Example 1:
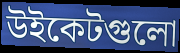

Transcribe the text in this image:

উইকেটগুলো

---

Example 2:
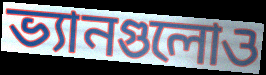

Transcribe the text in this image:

ভ্যানগুলোও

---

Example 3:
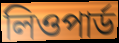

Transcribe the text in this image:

লিওপার্ড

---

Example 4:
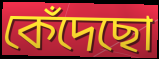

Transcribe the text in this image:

কেঁদেছো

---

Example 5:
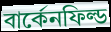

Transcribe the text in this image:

বার্কেনফিল্ড